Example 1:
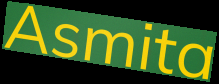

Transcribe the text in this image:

Asmita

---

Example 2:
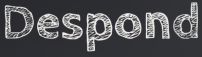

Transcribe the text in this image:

Despond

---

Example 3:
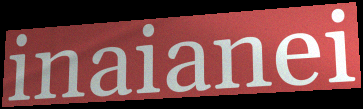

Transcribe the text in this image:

inaianei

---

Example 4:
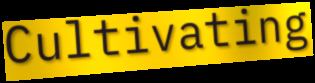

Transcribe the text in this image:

Cultivating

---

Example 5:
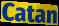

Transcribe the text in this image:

Catan